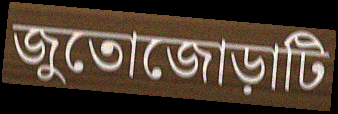
জুতোজোড়াটি